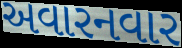
અવારનવાર